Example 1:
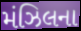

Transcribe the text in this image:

મંઝિલના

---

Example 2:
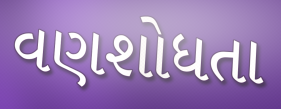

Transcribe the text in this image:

વણશોધતા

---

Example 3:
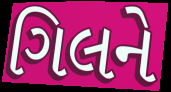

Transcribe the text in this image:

ગિલને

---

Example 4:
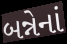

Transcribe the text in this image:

બન્નેનાં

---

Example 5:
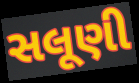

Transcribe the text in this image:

સલૂણી